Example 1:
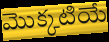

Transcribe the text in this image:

మొక్కటియే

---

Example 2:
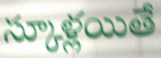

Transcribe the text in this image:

స్కూళ్లయితే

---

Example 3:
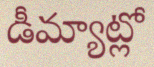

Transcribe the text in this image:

డీమ్యాట్లో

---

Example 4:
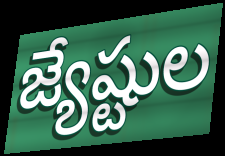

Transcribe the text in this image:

జ్యేష్టుల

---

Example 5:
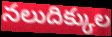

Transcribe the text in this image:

నలుదిక్కుల